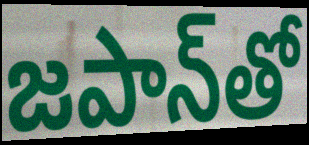
జపాన్‌తో